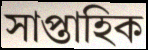
সাপ্তাহিক